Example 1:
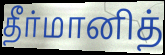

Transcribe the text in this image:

தீர்மானித்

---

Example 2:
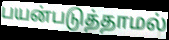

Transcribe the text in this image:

பயன்படுத்தாமல்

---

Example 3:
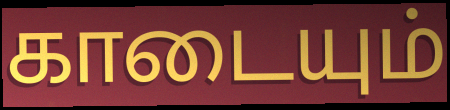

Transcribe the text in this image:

காடையும்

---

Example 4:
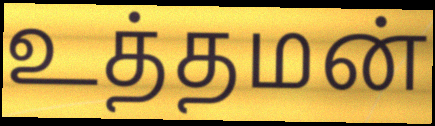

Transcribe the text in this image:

உத்தமன்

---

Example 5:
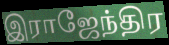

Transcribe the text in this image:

இராஜேந்திர